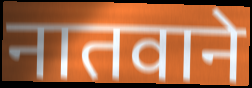
नातवाने